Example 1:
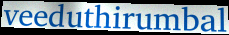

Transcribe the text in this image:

veeduthirumbal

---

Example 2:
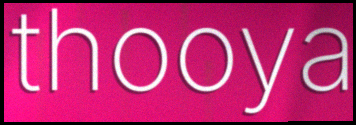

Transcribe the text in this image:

thooya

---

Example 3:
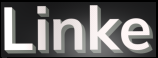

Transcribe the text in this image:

Linke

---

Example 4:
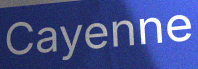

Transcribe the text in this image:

Cayenne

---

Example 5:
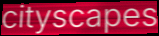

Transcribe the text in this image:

cityscapes